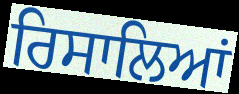
ਰਿਸਾਲਿਆਂ